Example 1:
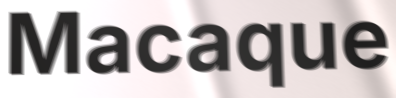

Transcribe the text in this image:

Macaque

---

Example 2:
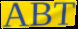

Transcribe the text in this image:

ABT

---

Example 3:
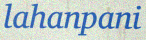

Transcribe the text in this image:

lahanpani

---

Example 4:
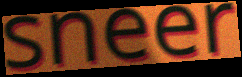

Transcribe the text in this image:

sneer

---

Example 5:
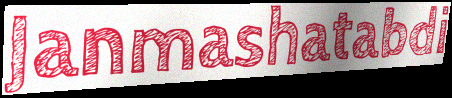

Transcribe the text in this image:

Janmashatabdi